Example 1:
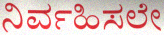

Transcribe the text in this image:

ನಿರ್ವಹಿಸಲೇ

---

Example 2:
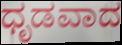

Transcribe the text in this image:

ಧೃಡವಾದ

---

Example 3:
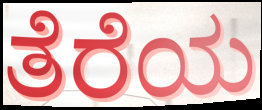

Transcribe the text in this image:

ತೆರೆಯ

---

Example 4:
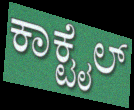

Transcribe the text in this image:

ಕಾಕ್ಟೈಲ್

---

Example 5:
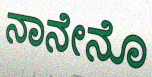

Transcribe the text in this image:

ನಾನೇನೊ